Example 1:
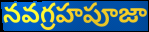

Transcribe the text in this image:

నవగ్రహపూజా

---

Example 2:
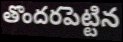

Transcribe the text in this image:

తొందరపెట్టిన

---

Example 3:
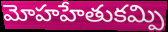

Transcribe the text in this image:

మోహహేతుకమ్పి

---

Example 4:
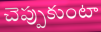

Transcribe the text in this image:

చెప్పుకుంటా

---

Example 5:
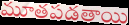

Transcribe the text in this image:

మూతపడతాయి